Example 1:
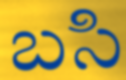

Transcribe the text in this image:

బసి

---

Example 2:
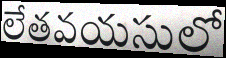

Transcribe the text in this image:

లేతవయసులో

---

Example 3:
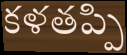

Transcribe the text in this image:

కళతప్పి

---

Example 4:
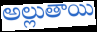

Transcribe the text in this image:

అల్లుతాయి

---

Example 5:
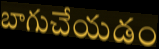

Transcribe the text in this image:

బాగుచేయడం